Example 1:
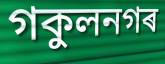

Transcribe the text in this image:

গকুলনগৰ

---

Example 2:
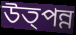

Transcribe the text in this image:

উত্পন্ন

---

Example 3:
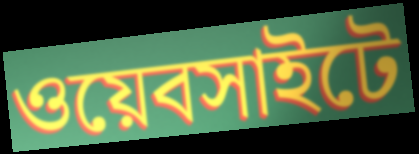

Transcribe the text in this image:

ওয়েবসাইটে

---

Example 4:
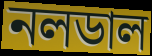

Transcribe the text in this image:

নলডাল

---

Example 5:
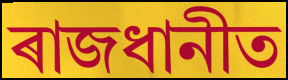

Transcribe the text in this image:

ৰাজধানীত